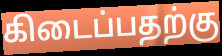
கிடைப்பதற்கு